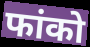
फांको